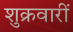
शुक्रवारीं